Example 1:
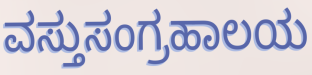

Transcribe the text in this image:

ವಸ್ತುಸಂಗ್ರಹಾಲಯ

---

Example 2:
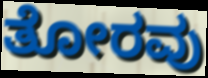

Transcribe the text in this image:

ತೋರವು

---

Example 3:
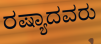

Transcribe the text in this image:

ರಷ್ಯಾದವರು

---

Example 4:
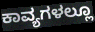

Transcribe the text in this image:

ಕಾವ್ಯಗಳಲ್ಲೂ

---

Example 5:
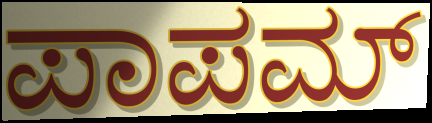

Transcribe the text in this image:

ಪಾಪಮ್